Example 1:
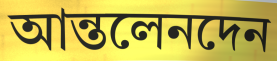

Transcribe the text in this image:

আন্তলেনদেন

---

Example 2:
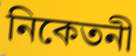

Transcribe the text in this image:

নিকেতনী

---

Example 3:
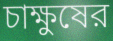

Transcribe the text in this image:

চাক্ষুষের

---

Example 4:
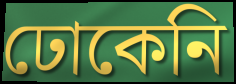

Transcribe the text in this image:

ঢোকেনি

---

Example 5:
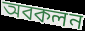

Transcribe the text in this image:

অবকলন